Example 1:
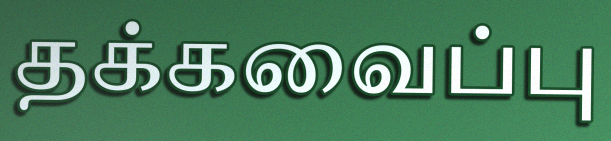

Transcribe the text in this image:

தக்கவைப்பு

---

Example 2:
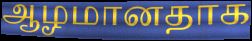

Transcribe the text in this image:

ஆழமானதாக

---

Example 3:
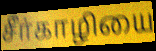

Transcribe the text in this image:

சீர்காழியை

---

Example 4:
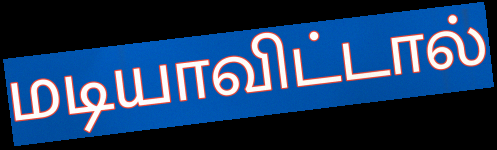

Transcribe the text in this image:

மடியாவிட்டால்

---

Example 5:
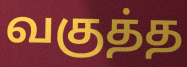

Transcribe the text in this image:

வகுத்த